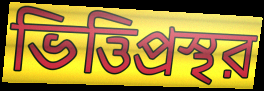
ভিত্তিপ্রস্থর